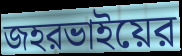
জহরভাইয়ের